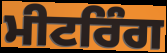
ਮੀਟਰਿੰਗ